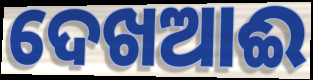
ଦେଖଆଈ